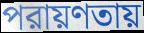
পরায়ণতায়